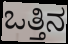
ಒತ್ತಿನ